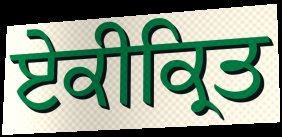
ਏਕੀਕ੍ਰਿਤ